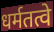
धर्मतत्वे